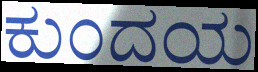
ಕುಂದಯ